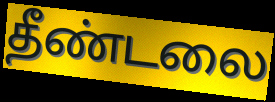
தீண்டலை